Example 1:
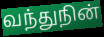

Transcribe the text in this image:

வந்துநின்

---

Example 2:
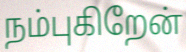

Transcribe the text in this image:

நம்புகிறேன்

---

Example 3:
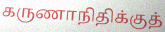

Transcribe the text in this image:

கருணாநிதிக்குத்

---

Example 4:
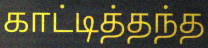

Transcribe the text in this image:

காட்டித்தந்த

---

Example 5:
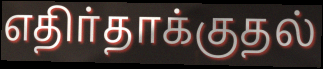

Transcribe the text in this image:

எதிர்தாக்குதல்